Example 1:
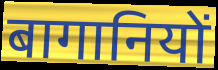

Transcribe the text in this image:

बागानियों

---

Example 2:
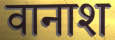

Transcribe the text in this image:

वानाश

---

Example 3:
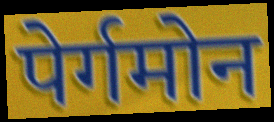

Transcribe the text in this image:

पेर्गमोन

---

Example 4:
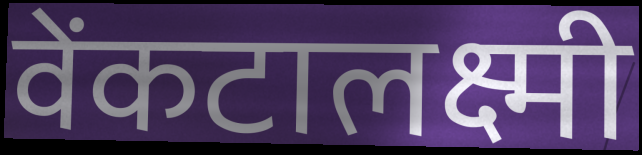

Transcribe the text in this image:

वेंकटालक्ष्मी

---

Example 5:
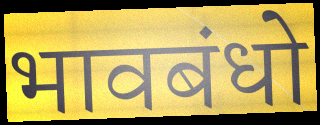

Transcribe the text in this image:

भावबंधो